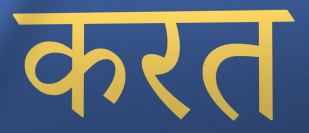
करत